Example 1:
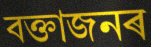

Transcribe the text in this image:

বক্তাজনৰ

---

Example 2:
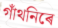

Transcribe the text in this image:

গাঁথনিৰে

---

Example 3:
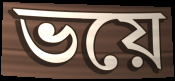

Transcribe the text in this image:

ভয়ে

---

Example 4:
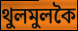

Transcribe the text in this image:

থুলমুলকৈ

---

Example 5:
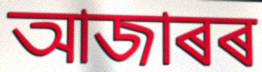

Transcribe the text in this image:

আজাৰৰ